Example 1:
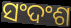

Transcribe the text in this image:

ସଂଦଂଶ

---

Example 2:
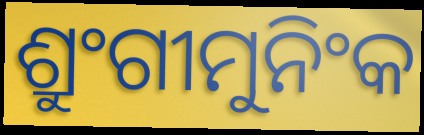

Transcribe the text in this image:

ଶ୍ରୁଂଗୀମୁନିଂକ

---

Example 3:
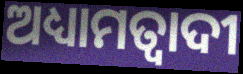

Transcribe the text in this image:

ଅଧ୍ୟାମତ୍ବାଦୀ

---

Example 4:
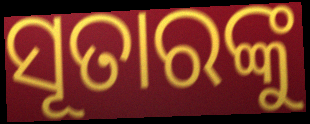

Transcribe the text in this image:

ସୂତାରଙ୍କୁ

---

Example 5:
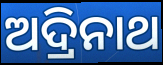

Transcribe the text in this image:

ଅଦ୍ରିନାଥ